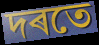
দৰতে